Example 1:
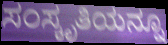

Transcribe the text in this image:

ಸಂಸ್ಕೃತಿಯನ್ನೂ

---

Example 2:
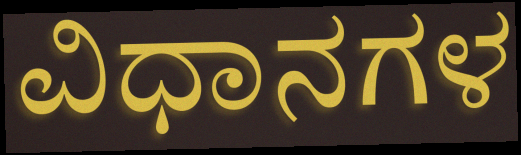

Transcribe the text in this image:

ವಿಧಾನಗಳ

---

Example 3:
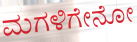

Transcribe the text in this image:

ಮಗಳಿಗೇನೋ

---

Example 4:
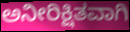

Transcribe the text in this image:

ಅನೀರಿಕ್ಷಿತವಾಗಿ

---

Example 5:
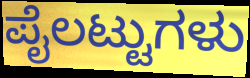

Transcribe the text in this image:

ಪೈಲಟ್ಟುಗಳು